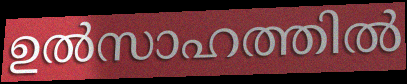
ഉൽസാഹത്തിൽ